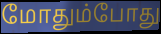
மோதும்போது